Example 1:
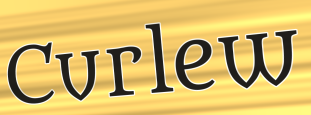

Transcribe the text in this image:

Curlew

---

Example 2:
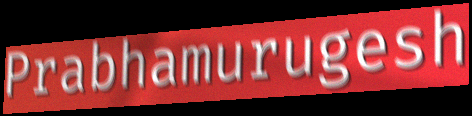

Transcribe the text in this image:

Prabhamurugesh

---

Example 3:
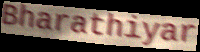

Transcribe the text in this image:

Bharathiyar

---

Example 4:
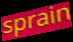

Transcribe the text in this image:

sprain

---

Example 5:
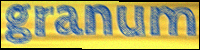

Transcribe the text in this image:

granum